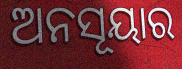
ଅନସୂୟାର